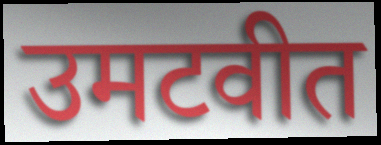
उमटवीत